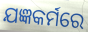
ଯଜ୍ଞକର୍ମରେ